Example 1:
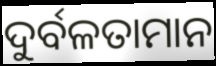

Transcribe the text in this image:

ଦୁର୍ବଳତାମାନ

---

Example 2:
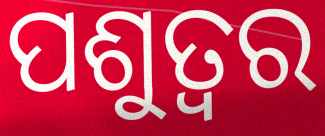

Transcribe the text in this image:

ପଶୁତ୍ୱର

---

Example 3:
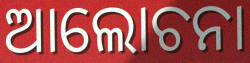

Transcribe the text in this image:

ଆଲୋଚନା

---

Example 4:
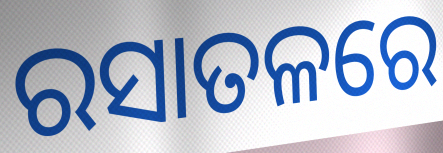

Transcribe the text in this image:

ରସାତଳରେ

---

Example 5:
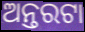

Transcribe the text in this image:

ଅନ୍ତରଟା